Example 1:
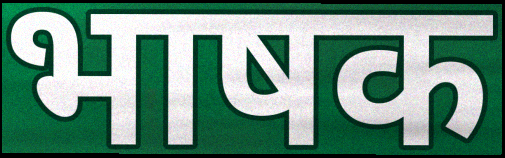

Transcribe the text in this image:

भाषक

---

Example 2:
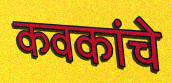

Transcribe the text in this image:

कवकांचे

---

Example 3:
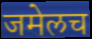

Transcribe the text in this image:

जमेलच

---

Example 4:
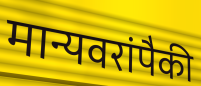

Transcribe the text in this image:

मान्यवरांपैकी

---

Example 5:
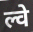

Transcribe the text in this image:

ल्वे